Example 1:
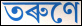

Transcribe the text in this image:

তৰুণে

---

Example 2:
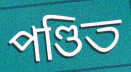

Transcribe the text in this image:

পণ্ডিত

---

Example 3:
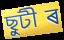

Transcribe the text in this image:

ছুটীৰ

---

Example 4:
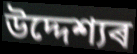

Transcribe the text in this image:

উদ্দেশ্যৰ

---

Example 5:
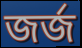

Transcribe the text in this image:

জৰ্জ